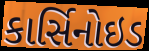
કાર્સિનોઇડ